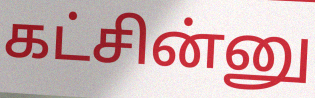
கட்சின்னு